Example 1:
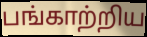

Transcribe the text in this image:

பங்காற்றிய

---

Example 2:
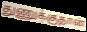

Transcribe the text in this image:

துணுக்குதான்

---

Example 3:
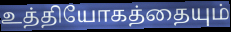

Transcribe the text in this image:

உத்தியோகத்தையும்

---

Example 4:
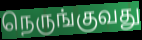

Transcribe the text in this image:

நெருங்குவது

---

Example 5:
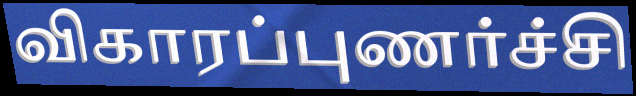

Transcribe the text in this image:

விகாரப்புணர்ச்சி